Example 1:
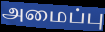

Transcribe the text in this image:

அமைப்பு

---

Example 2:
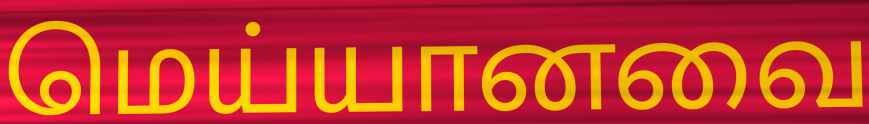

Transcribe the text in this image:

மெய்யானவை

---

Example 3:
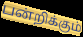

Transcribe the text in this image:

பன்றிக்கும்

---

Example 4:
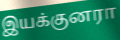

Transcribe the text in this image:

இயக்குனரா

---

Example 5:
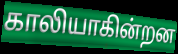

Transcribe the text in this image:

காலியாகின்றன